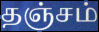
தஞ்சம்